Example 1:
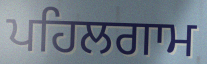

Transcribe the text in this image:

ਪਹਿਲਗਾਮ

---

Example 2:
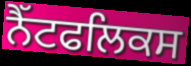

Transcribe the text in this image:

ਨੈੱਟਫਲਿਕਸ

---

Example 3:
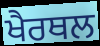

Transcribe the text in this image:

ਖੈਰਥਲ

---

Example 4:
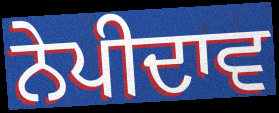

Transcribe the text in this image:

ਨੇਪੀਦਾਵ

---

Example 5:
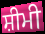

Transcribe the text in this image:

ਸ਼ੀਮੀ